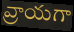
వ్రాయగా